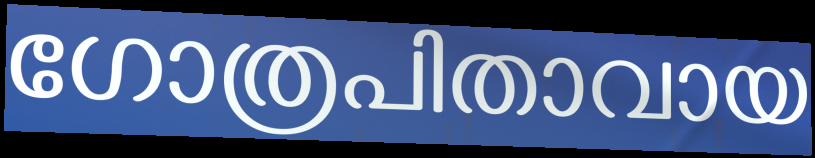
ഗോത്രപിതാവായ